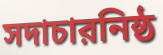
সদাচারনিষ্ঠ